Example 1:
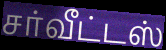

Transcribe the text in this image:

சர்வீட்டஸ்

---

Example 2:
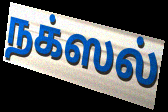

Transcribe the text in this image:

நக்ஸல்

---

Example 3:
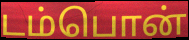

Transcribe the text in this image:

டம்பொன்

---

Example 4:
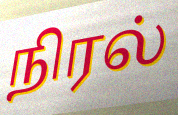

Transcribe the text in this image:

நிரல்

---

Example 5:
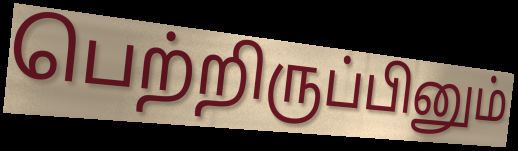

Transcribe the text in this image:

பெற்றிருப்பினும்